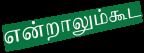
என்றாலும்கூட